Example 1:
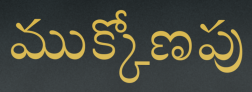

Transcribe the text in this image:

ముక్కోణపు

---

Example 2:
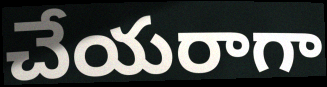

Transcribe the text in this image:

చేయరాగా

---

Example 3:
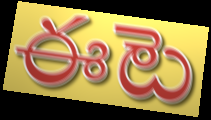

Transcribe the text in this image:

ఈటె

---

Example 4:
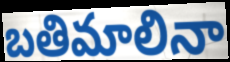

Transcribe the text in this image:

బతిమాలినా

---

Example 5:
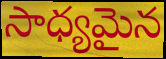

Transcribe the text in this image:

సాధ్యమైన